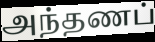
அந்தணப்